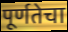
पूर्णतेचा